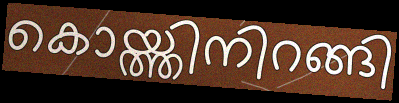
കൊയ്ത്തിനിറങ്ങി